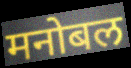
मनोबल